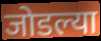
जोडल्या